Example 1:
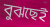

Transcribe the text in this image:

বুঝছেই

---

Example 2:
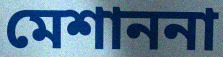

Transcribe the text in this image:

মেশাননা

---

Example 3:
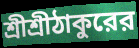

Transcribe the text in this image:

শ্রীশ্রীঠাকুরের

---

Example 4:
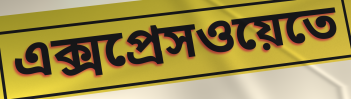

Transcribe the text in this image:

এক্সপ্রেসওয়েতে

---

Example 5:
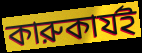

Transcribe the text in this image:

কারুকার্যই